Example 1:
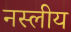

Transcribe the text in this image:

नस्लीय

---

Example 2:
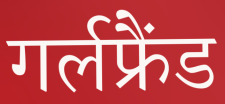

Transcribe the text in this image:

गर्लफ्रैंड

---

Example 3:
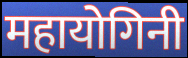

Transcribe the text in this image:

महायोगिनी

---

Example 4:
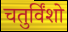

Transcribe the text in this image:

चतुर्विंशो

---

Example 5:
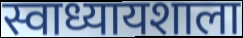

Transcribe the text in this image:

स्वाध्यायशाला